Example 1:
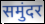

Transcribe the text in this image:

समुंदर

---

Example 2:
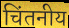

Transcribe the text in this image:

चिंतनीय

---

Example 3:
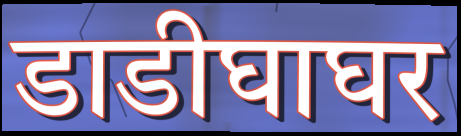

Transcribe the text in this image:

डाडीघाघर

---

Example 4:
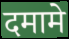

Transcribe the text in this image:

दमामे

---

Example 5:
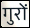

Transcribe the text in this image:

गुरों